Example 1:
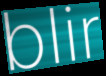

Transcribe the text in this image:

blir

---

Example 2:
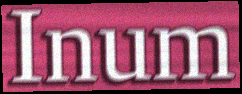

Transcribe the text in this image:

Inum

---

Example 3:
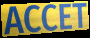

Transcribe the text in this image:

ACCET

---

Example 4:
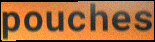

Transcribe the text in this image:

pouches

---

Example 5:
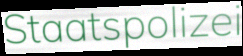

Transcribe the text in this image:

Staatspolizei